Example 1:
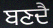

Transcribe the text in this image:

ਬਣਦੈ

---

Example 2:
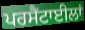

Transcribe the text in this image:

ਪਰਸੈਂਟਾਈਲਾਂ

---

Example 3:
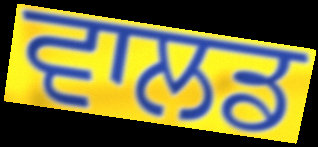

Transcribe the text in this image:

ਵਾਲਡ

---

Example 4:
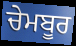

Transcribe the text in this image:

ਚੇਮਬੂਰ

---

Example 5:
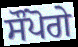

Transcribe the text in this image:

ਸੌਂਪੋਗੇ